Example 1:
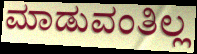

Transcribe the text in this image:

ಮಾಡುವಂತಿಲ್ಲ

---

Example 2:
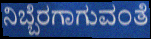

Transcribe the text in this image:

ನಿಬ್ಬೆರಗಾಗುವಂತೆ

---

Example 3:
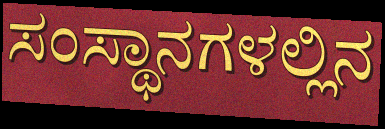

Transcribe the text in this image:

ಸಂಸ್ಥಾನಗಳಲ್ಲಿನ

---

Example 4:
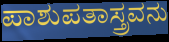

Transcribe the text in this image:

ಪಾಶುಪತಾಸ್ತ್ರವನು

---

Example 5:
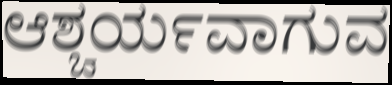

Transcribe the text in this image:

ಆಶ್ಚರ್ಯವಾಗುವ